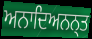
ਅਨਾਦਿਅਨਨ੍ਤ